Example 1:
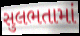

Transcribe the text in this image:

સુલભતામાં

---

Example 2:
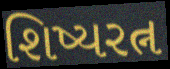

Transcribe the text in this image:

શિષ્યરત્ન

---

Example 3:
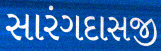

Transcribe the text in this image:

સારંગદાસજી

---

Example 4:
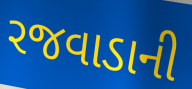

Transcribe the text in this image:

રજવાડાની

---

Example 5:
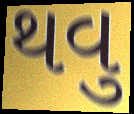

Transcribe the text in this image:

થવુ